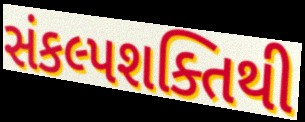
સંકલ્પશક્તિથી